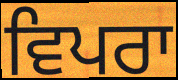
ਵਿਪਰਾ